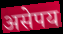
असेपय